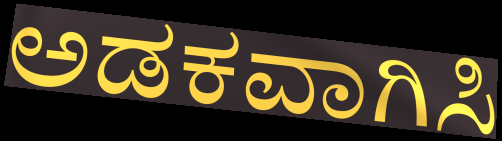
ಅಡಕವಾಗಿಸಿ